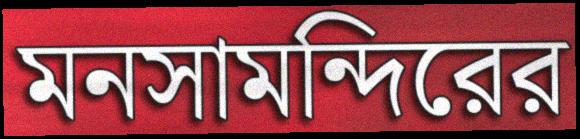
মনসামন্দিরের